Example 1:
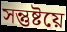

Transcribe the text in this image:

সন্তুষ্টয়ে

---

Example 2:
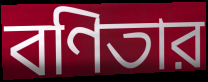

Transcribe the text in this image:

বণিতার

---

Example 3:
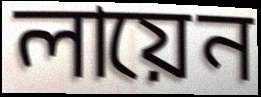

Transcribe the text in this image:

লায়েন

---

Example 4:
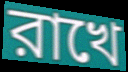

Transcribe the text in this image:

রাখে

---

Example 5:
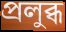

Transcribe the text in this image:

প্রলুব্ধ